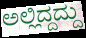
ಅಲ್ಲಿದ್ದದ್ದು